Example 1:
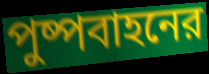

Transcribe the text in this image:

পুষ্পবাহনের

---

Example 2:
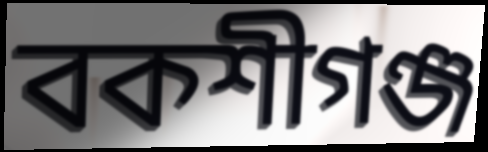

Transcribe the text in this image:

বকশীগঞ্জ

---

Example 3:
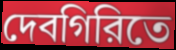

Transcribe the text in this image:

দেবগিরিতে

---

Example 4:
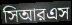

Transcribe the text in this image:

সিআরএস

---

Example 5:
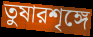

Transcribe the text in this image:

তুষারশৃঙ্গে